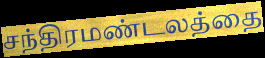
சந்திரமண்டலத்தை